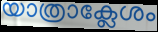
യാത്രാക്ലേശം